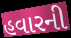
હવારની